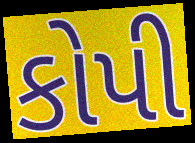
કોપી